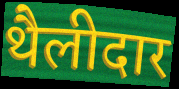
थैलीदार